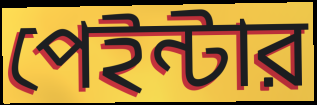
পেইন্টার